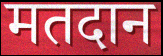
मतदान